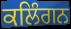
ਕਲਿੰਗਨ